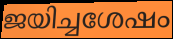
ജയിച്ചശേഷം